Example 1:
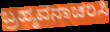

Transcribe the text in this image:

ಬ್ರಹ್ಮವನಾಚರಿಸಿ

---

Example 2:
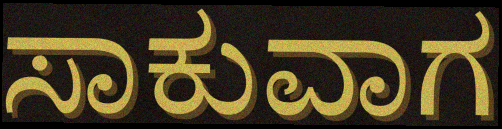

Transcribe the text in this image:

ಸಾಕುವಾಗ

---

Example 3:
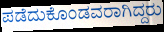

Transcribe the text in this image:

ಪಡೆದುಕೊಂಡವರಾಗಿದ್ದರು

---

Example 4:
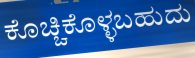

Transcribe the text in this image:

ಕೊಚ್ಚಿಕೊಳ್ಳಬಹುದು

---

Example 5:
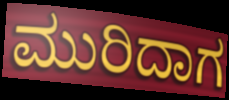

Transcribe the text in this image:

ಮುರಿದಾಗ